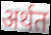
अर्थत